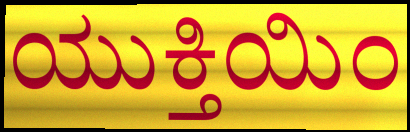
ಯುಕ್ತಿಯಿಂ